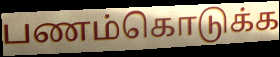
பணம்கொடுக்க